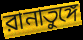
রানাতুঙ্গে